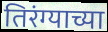
तिरंग्याच्या